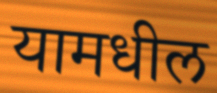
यामधील